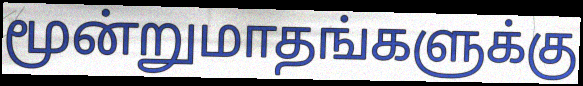
மூன்றுமாதங்களுக்கு